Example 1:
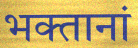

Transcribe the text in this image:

भक्तानां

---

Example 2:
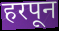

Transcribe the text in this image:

हरपून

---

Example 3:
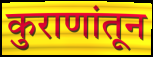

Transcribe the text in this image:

कुराणांतून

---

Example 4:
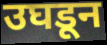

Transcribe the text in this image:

उघडून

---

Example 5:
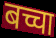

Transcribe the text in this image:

बच्चा